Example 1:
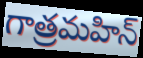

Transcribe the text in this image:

గాత్రమహిన్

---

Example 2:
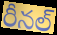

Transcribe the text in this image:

రీనల్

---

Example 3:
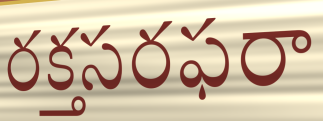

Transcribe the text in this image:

రక్తసరఫరా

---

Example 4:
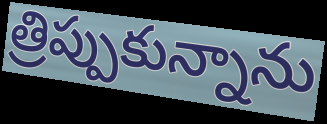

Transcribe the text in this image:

త్రిప్పుకున్నాను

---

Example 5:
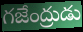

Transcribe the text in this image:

గజేంద్రుడు